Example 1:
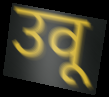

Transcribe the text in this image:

उवू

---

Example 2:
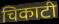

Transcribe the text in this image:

चिकाटी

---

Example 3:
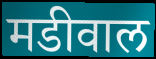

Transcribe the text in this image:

मडीवाल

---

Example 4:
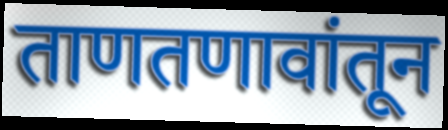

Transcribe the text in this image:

ताणतणावांतून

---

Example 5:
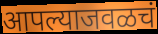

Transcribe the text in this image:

आपल्याजवळचं